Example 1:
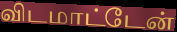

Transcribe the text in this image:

விடமாட்டேன்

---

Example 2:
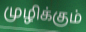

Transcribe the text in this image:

முழிக்கும்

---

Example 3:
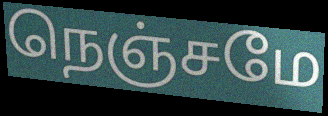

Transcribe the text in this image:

நெஞ்சமே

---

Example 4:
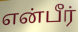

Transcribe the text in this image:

என்பீர்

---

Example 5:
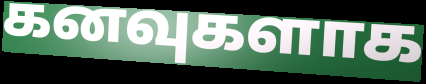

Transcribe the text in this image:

கனவுகளாக